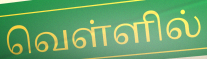
வெள்ளில்